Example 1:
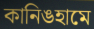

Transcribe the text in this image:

কানিঙহামে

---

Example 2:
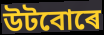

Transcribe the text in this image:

উটবোৰে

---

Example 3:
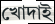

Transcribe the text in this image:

খোদাই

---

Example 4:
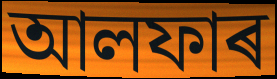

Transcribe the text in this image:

আলফাৰ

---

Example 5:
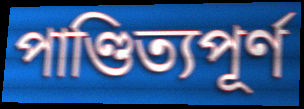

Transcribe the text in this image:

পাণ্ডিত্যপূৰ্ণ